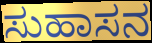
ಸುಹಾಸನ